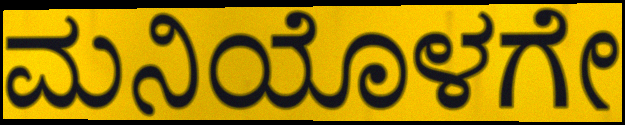
ಮನಿಯೊಳಗೇ